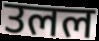
उलल